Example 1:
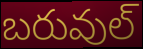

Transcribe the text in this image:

బరువుల్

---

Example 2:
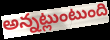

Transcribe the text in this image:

అన్నట్లుంటుంది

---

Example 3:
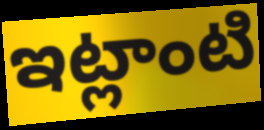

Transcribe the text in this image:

ఇట్లాంటి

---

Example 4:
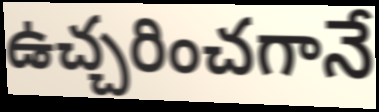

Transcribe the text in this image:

ఉచ్చరించగానే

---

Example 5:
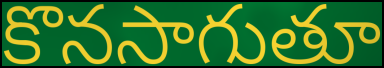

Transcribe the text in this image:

కొనసాగుతూ